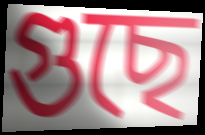
গুছে